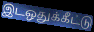
இடஒதுக்கீட்டு